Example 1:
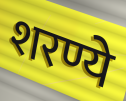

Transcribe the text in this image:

शरण्ये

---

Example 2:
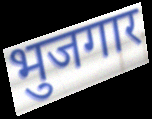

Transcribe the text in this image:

भुजगार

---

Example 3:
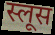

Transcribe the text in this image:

स्लूस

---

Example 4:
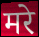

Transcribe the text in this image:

मरे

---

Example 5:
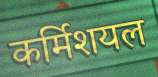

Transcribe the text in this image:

कर्मिशयल